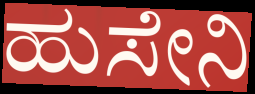
ಹುಸೇನಿ